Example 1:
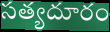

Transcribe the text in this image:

సత్యదూరం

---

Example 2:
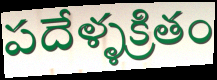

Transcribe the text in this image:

పదేళ్ళక్రితం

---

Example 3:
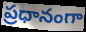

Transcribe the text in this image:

ప్రధానంగా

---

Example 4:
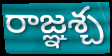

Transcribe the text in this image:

రాజ్ఞశ్చ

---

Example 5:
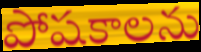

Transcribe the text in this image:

పోషకాలను